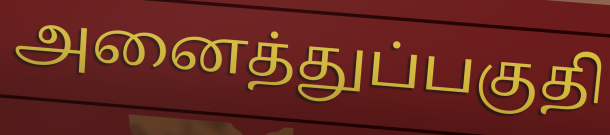
அனைத்துப்பகுதி